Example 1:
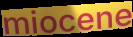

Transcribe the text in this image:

miocene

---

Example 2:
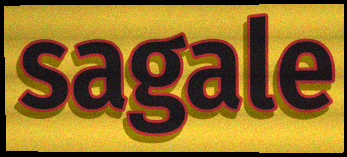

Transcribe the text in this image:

sagale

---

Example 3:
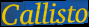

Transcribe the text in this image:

Callisto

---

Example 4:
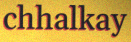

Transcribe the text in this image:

chhalkay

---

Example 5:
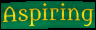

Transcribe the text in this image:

Aspiring